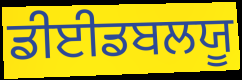
ਡੀਈਡਬਲਯੂ